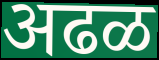
अढळ